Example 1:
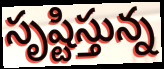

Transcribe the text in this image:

సృష్టిస్తున్న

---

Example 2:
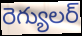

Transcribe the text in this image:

రెగ్యులర్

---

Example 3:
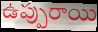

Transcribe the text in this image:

ఉప్పురాయి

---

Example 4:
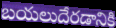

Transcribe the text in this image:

బయలుదేరడానికి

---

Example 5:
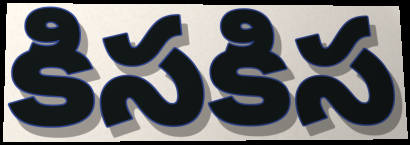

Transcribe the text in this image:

కిసకిస